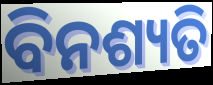
ବିନଶ୍ୟତି